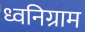
ध्वनिग्राम